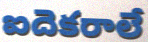
ఐదెకరాలే